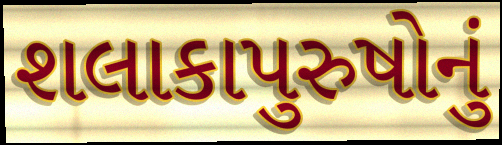
શલાકાપુરુષોનું